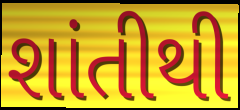
શાંતીથી